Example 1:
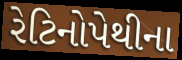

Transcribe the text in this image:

રેટિનોપેથીના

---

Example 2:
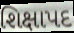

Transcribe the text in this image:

શિક્ષાપદ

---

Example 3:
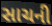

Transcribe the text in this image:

સાચની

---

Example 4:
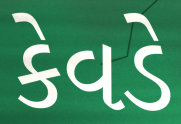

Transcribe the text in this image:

કેવડે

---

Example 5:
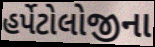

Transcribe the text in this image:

હર્પેટોલોજીના